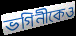
ভগিনীকেও